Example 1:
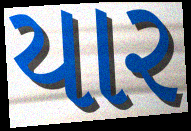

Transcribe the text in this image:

યાર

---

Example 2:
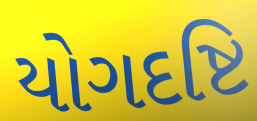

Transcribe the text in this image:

યોગદષ્ટિ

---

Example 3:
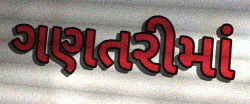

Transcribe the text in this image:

ગણતરીમાં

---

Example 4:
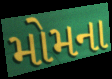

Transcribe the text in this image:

મોમના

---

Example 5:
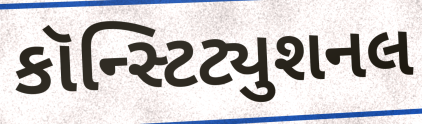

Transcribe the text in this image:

કૉન્સ્ટિટ્યુશનલ